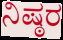
ನಿಷ್ಠರ